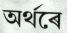
অৰ্থৰে